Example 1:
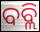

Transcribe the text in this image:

ବବ୍ଲି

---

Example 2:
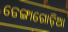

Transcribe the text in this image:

ଡେଙ୍ଗାଗୋଡ଼ିଆ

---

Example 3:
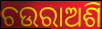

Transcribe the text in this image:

ଚଉରାଅଶି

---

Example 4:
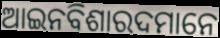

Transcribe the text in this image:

ଆଇନବିଶାରଦମାନେ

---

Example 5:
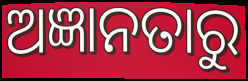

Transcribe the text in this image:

ଅଜ୍ଞାନତାରୁ